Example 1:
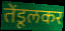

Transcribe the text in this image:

तेंडूलकर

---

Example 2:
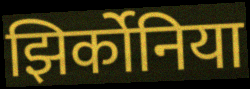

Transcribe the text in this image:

झिर्कोनिया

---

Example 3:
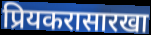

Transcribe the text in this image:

प्रियकरासारखा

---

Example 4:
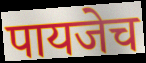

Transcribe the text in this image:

पायजेच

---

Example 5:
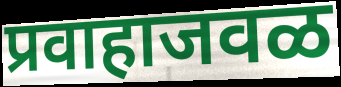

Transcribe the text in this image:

प्रवाहाजवळ